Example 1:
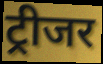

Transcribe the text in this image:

ट्रीजर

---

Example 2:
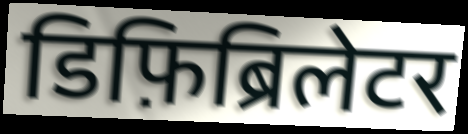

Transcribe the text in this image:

डिफ़िब्रिलेटर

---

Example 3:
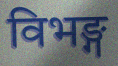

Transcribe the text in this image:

विभङ्ग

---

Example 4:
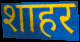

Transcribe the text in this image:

शाहर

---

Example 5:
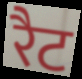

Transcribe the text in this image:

रैट